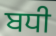
ਬਧੀ